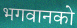
भगवानको